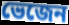
ভেজেন